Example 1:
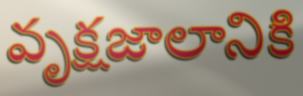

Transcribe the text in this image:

వృక్షజాలానికి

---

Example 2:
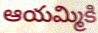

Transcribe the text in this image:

ఆయమ్మికి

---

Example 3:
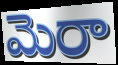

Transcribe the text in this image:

మెరా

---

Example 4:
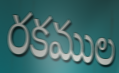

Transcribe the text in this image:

రకముల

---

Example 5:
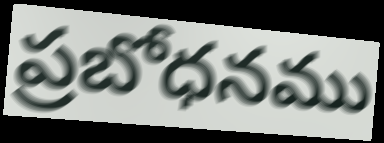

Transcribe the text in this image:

ప్రబోధనము